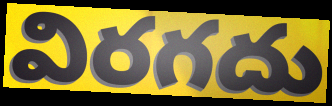
విరగదు